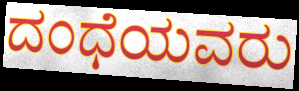
ದಂಧೆಯವರು